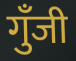
गुँजी